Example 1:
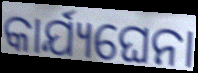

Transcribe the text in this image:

କାର୍ଯ୍ୟଘେନା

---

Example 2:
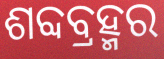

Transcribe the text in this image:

ଶବ୍ଦବ୍ରହ୍ମର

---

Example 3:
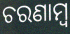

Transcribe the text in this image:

ଚରଣାମ୍ବ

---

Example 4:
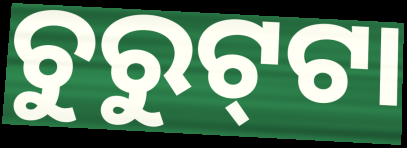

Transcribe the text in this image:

ଚୁରୁଟ୍‍ଟା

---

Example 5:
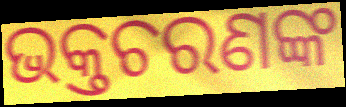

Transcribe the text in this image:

ଭକ୍ତଚରଣଙ୍କ